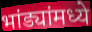
भांड्यांमध्ये